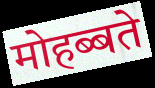
मोहब्बते